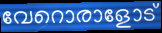
വേറൊരാളോട്